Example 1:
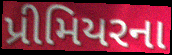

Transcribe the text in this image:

પ્રીમિયરના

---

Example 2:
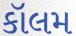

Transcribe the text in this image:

કૉલમ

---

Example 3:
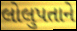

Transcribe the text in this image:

લોલુપતાને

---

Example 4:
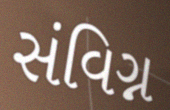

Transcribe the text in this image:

સંવિગ્ન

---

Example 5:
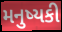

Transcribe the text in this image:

મનુષ્યકી